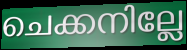
ചെക്കനില്ലേ